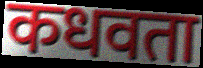
कधवता